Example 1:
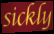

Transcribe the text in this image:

sickly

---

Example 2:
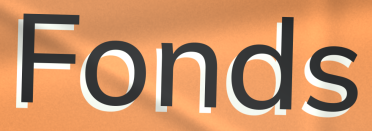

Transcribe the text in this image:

Fonds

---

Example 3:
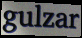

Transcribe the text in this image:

gulzar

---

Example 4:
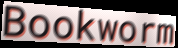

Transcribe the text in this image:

Bookworm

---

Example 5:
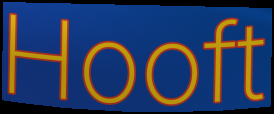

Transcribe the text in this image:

Hooft